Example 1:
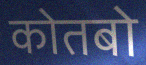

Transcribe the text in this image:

कोतबो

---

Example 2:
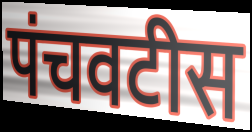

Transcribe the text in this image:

पंचवटीस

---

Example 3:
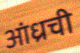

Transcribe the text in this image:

आंध्रची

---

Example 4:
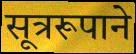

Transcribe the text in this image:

सूत्ररूपाने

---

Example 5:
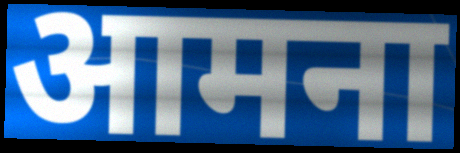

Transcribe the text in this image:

आमना